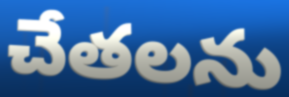
చేతలను